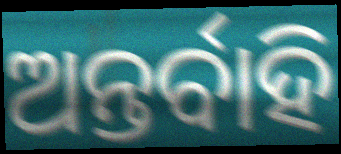
ଅନ୍ତର୍ବାହି